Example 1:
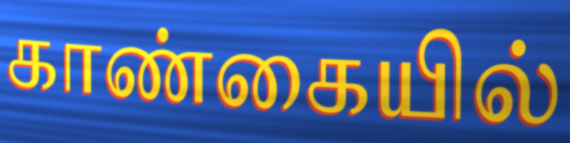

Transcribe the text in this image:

காண்கையில்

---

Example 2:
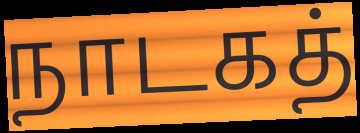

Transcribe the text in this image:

நாடகத்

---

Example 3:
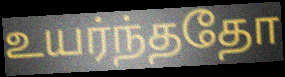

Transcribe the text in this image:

உயர்ந்ததோ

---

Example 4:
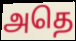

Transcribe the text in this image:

அதெ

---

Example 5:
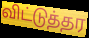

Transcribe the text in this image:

விட்டுத்தர